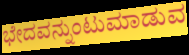
ಭೇದವನ್ನುಂಟುಮಾಡುವ